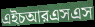
এইচআরএসএস